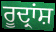
ਰੂਦ੍ਰਾਂਸ਼